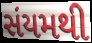
સંયમથી